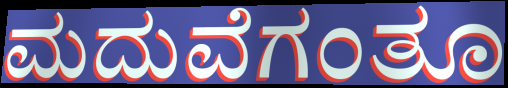
ಮದುವೆಗಂತೂ